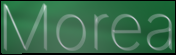
Morea